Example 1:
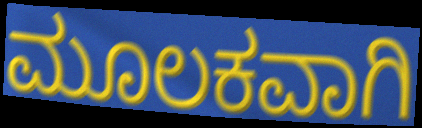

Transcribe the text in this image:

ಮೂಲಕವಾಗಿ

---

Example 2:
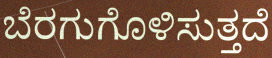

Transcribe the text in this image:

ಬೆರಗುಗೊಳಿಸುತ್ತದೆ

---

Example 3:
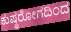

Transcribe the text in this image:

ಕುಷ್ಠರೋಗದಿಂದ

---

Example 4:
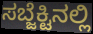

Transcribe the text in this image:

ಸಬ್ಜೆಕ್ಟಿನಲ್ಲಿ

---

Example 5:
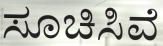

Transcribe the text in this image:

ಸೂಚಿಸಿವೆ